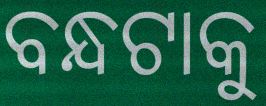
ବନ୍ଧଟାକୁ